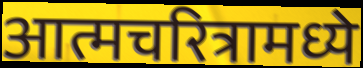
आत्मचरित्रामध्ये